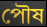
পৌষ